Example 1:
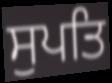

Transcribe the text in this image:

ਸੁਪਤਿ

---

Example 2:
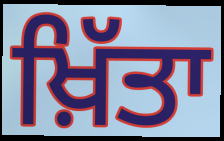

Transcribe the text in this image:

ਖ਼ਿੱਤਾ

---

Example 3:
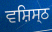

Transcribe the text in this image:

ਵਸ਼ਿਸ੍ਠ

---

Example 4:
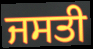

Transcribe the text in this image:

ਜਸਤੀ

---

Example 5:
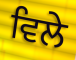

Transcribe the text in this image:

ਵਿਲੇ